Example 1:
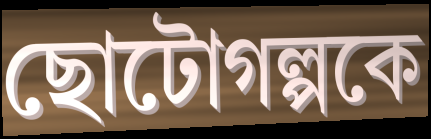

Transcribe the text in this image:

ছোটোগল্পকে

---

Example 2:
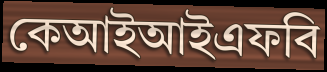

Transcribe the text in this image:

কেআইআইএফবি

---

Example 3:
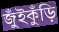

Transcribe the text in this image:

জুঁইকুঁড়ি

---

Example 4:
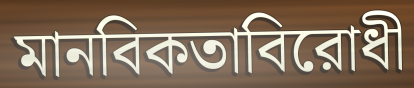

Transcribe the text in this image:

মানবিকতাবিরোধী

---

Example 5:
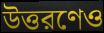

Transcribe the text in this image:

উত্তরণেও